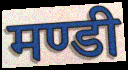
मण्डी